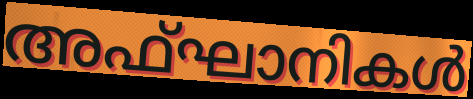
അഫ്ഘാനികൾ